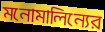
মনোমালিন্যের